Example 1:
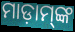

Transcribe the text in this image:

ମାଡ଼ାମ୍‌ଙ୍କ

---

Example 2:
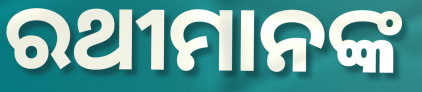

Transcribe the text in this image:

ରଥୀମାନଙ୍କ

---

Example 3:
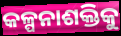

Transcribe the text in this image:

କଳ୍ପନାଶକ୍ତିକୁ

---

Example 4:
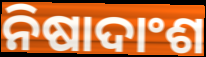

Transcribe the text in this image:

ନିଷାଦାଂଶ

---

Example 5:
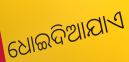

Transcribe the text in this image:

ଧୋଇଦିଆଯାଏ